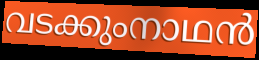
വടക്കുംനാഥൻ